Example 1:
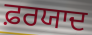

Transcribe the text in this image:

ਫ਼ਰਯਾਦ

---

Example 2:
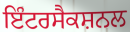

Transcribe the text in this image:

ਇੰਟਰਸੈਕਸ਼ਨਲ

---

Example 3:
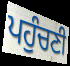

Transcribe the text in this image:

ਪਹੁੰਚਣੀ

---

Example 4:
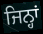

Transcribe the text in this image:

ਜਿਨ੍ਹਾਂ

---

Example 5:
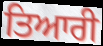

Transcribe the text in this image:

ਤਿਆਰੀ